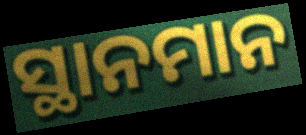
ସ୍ଥାନମାନ